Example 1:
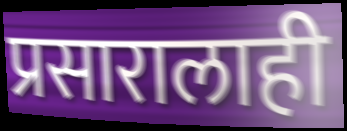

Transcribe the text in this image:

प्रसारालाही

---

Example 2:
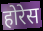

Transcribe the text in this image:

होरेस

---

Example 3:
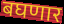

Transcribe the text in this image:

बघणार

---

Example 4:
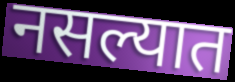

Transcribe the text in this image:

नसल्यात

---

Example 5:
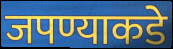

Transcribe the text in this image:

जपण्याकडे